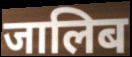
जालिब